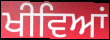
ਖੀਵਿਆਂ